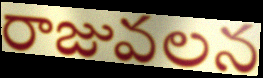
రాజువలన